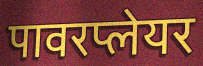
पावरप्लेयर